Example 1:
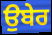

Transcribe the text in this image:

ਉਬੇਰ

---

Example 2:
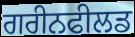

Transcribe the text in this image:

ਗਰੀਨਫੀਲਡ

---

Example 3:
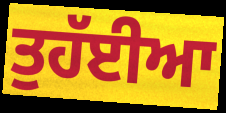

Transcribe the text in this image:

ਤੁਹੱਈਆ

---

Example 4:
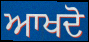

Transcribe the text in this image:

ਆਖਦੋ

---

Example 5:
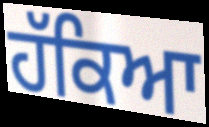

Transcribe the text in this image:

ਹੱਕਿਆ